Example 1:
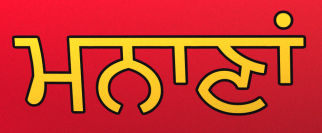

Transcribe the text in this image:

ਮਨਾਣਾਂ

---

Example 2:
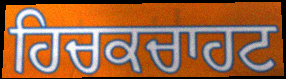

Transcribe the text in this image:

ਹਿਚਕਚਾਹਟ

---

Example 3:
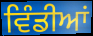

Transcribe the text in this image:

ਵਿੰਡੀਆਂ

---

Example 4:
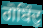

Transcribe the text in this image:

ਗੋਬਿੰਦੁ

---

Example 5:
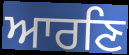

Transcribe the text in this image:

ਆਰਣਿ